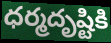
ధర్మదృష్టికి